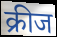
क्रीज